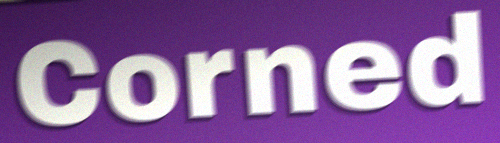
Corned